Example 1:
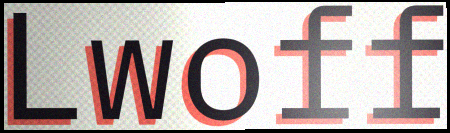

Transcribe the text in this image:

Lwoff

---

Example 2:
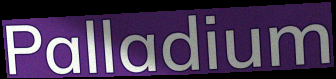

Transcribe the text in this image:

Palladium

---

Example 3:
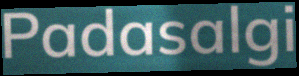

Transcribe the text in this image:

Padasalgi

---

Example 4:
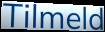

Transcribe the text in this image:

Tilmeld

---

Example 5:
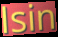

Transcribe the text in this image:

Isin